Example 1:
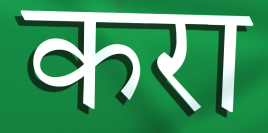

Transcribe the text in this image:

करा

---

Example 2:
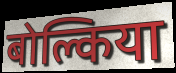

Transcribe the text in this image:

बोल्किया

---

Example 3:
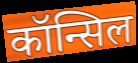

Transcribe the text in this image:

कॉन्सिल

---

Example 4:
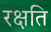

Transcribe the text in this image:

रक्षति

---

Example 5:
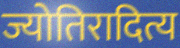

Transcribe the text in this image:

ज्योतिरादित्य